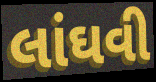
લાંઘવી